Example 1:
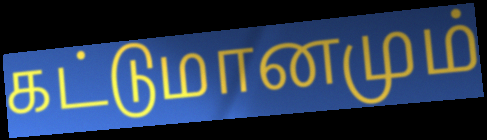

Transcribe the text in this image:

கட்டுமானமும்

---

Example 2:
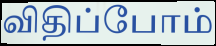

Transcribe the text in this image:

விதிப்போம்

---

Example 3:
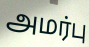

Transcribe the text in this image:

அமர்பு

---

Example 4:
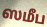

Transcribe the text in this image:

ஸமீப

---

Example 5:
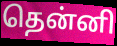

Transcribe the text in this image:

தென்னி